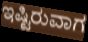
ಇಷ್ಟಿರುವಾಗ